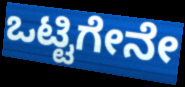
ಒಟ್ಟಿಗೇನೇ